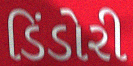
ડિંડોરી